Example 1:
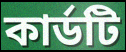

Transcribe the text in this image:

কার্ডটি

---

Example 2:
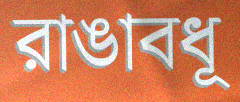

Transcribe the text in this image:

রাঙাবধূ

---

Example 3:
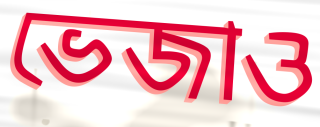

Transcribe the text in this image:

ভেজাও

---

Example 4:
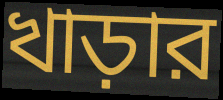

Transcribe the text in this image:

খাড়ার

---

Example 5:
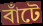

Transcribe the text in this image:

বাঁটে